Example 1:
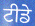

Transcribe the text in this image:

ਟੀਡੇ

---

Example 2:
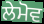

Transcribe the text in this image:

ਲੇਮੋਵ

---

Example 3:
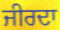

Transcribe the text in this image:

ਜੀਰਦਾ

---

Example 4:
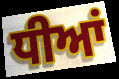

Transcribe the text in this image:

ਧੀਆਂ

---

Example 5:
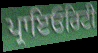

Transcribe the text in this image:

ਪ੍ਰਾਇਓਰਿਟੀ